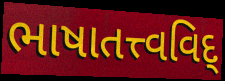
ભાષાતત્ત્વવિદ્